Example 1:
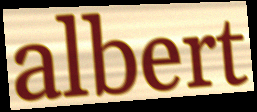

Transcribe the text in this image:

albert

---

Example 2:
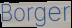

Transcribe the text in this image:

Borger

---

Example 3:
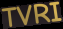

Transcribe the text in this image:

TVRI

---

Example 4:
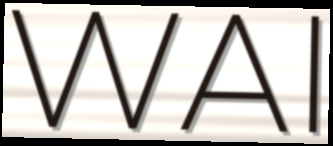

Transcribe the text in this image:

WAI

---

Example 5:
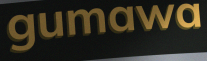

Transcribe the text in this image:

gumawa